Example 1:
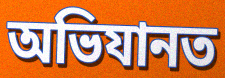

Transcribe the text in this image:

অভিযানত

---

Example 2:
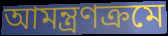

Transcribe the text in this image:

আমন্ত্ৰণক্ৰমে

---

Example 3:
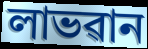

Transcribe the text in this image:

লাভৱান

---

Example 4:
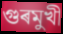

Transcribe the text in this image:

গুৰমুখী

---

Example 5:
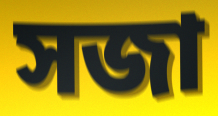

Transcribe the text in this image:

সজা